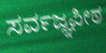
ಸರ್ವಜ್ಞಪೀಠ